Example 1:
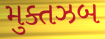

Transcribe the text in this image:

મુક્તઝબ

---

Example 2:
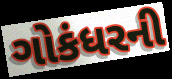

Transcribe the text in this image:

ગોકંધરની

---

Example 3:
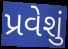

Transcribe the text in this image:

પ્રવેશું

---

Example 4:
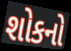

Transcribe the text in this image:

શોકનો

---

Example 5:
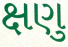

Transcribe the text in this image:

ક્ષણુ